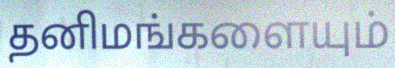
தனிமங்களையும்